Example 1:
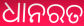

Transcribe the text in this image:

ଧାନରତ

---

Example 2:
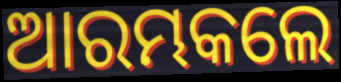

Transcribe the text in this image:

ଆରମ୍ଭକଲେ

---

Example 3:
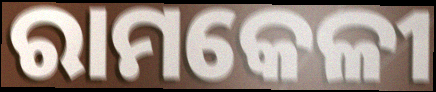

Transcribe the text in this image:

ରାମକେଳୀ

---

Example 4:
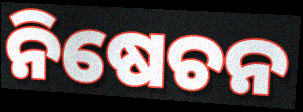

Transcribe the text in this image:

ନିଷେଚନ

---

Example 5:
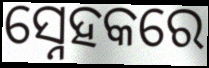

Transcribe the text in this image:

ସ୍ନେହକରେ